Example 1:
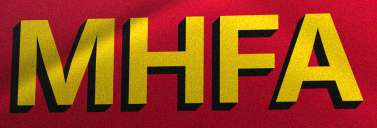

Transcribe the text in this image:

MHFA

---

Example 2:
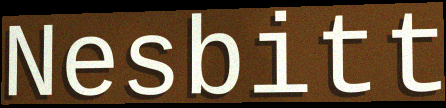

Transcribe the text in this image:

Nesbitt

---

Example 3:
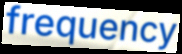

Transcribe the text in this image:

frequency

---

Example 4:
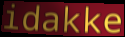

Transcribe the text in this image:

idakke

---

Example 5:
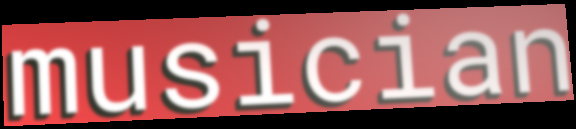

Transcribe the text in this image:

musician